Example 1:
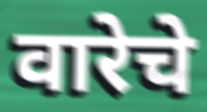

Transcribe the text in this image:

वारेचे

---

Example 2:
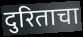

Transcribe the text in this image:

दुरिताचा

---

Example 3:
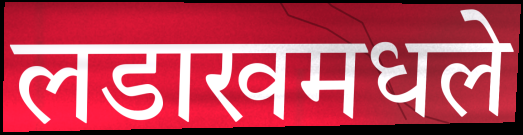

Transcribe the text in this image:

लडाखमधले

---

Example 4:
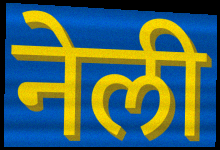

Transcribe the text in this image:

नेली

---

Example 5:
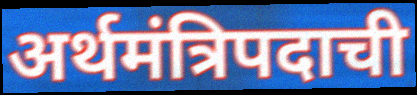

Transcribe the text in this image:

अर्थमंत्रिपदाची